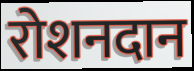
रोशनदान